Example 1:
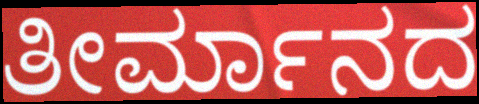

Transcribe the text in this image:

ತೀರ್ಮಾನದ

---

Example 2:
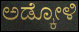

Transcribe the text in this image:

ಅಡ್ಕೋಳಿ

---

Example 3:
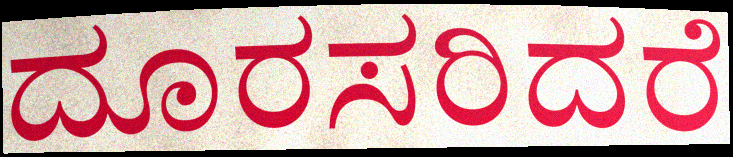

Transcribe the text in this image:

ದೂರಸರಿದರೆ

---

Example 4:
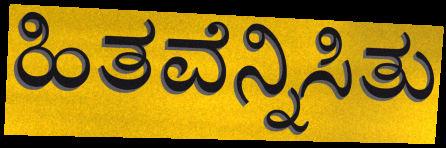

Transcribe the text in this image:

ಹಿತವೆನ್ನಿಸಿತು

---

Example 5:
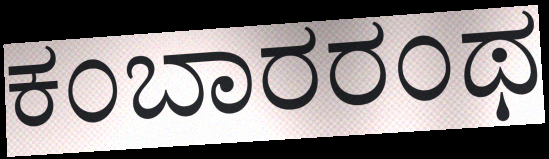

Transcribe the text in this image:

ಕಂಬಾರರಂಥ